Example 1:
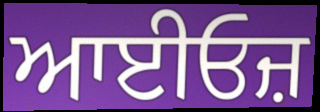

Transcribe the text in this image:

ਆਈਓਜ਼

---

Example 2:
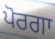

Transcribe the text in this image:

ਪੋਰਗਾ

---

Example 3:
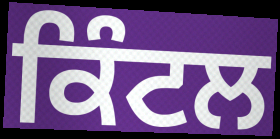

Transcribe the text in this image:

ਕਿੰਟਲ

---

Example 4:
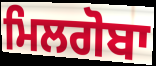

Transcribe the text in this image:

ਮਿਲਗੋਬਾ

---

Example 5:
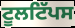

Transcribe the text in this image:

ਟੂਲਟਿੱਪਸ